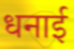
धनाई